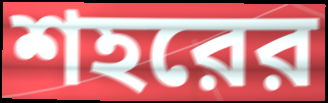
শহরের